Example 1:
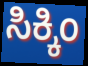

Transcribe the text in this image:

ಸಿಕ್ಕಿಂ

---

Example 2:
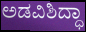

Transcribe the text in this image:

ಅಡವಿಶಿದ್ಧಾ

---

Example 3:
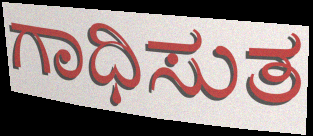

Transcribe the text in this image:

ಗಾಧಿಸುತ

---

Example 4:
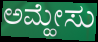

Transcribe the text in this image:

ಅಮ್ಹೇಸು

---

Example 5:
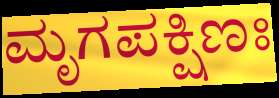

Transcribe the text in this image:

ಮೃಗಪಕ್ಷಿಣಃ